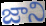
జాని